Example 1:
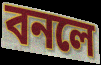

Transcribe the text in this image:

বনলে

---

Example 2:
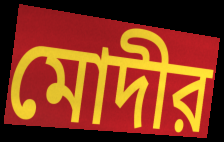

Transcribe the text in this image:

মোদীর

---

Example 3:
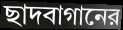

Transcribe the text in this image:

ছাদবাগানের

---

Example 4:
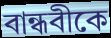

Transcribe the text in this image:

বান্ধবীকে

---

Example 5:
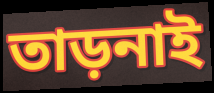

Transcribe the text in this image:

তাড়নাই